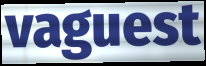
vaguest